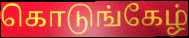
கொடுங்கேழ்